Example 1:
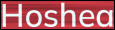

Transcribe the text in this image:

Hoshea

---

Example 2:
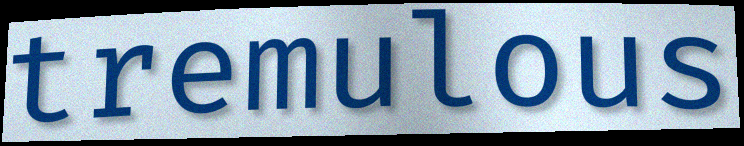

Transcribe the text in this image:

tremulous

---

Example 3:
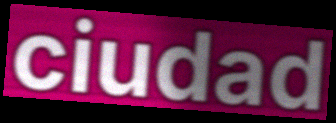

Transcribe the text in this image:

ciudad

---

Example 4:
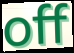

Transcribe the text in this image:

off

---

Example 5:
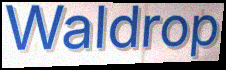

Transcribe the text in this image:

Waldrop